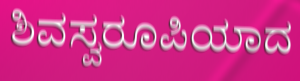
ಶಿವಸ್ವರೂಪಿಯಾದ